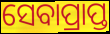
ସେବାପ୍ରାପ୍ତ